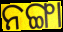
ନଙ୍ଗା